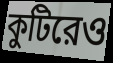
কুটিরেও